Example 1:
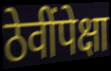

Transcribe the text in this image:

ठेवींपेक्षा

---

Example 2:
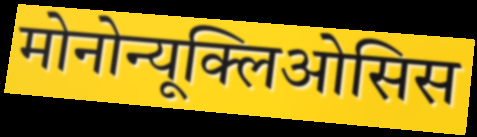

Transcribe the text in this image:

मोनोन्यूक्लिओसिस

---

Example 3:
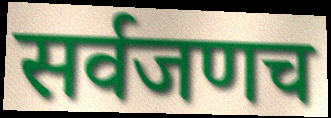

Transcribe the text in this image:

सर्वजणच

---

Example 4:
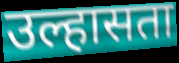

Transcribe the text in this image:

उल्हासता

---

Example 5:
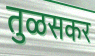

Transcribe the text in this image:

तुळसकर